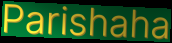
Parishaha